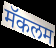
मॅकलम